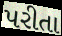
પરીતા